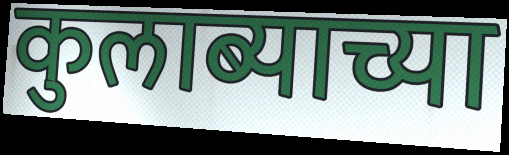
कुलाब्याच्या